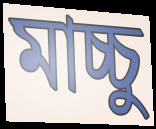
মাচ্চু